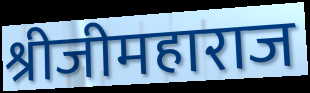
श्रीजीमहाराज